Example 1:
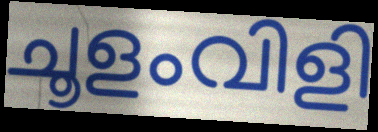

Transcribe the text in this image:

ചൂളംവിളി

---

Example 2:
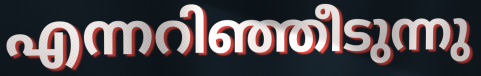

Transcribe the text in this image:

എന്നറിഞ്ഞീടുന്നു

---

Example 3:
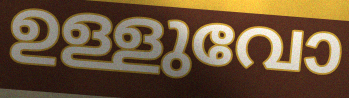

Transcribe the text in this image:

ഉള്ളുവോ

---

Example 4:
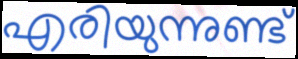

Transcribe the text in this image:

എരിയുന്നുണ്ട്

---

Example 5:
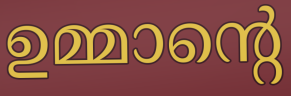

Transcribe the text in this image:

ഉമ്മാന്റെ